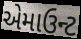
એમાઉન્ટ